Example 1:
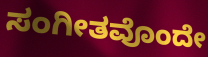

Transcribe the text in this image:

ಸಂಗೀತವೊಂದೇ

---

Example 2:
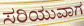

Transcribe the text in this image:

ಸರಿಯುವಾಗ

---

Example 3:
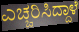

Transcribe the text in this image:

ಎಚ್ಚರಿಸಿದ್ದಾಳೆ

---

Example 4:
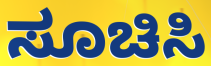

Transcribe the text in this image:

ಸೂಚಿಸಿ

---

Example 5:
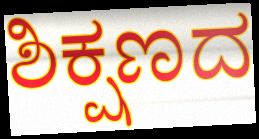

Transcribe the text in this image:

ಶಿಕ್ಷಣದ